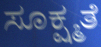
ಸೂಕ್ಷ್ಮತೆ